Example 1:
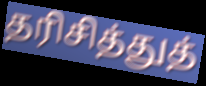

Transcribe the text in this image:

தரிசித்துத்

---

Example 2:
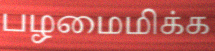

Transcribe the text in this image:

பழமைமிக்க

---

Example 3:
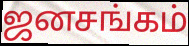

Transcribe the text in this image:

ஜனசங்கம்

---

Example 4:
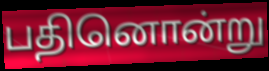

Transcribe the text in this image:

பதினொன்று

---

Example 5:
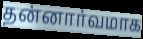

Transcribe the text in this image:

தன்னார்வமாக